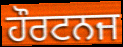
ਹੌਰਟਨਜ